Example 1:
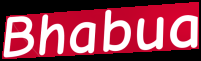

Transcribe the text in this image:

Bhabua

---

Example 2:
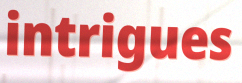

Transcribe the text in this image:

intrigues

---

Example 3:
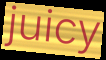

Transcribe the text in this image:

juicy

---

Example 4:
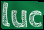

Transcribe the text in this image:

luc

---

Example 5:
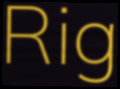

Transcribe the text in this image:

Rig